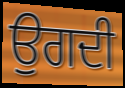
ਉਗਦੀ